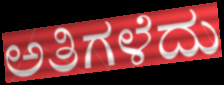
ಅತಿಗಳೆದು